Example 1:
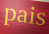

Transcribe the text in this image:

pais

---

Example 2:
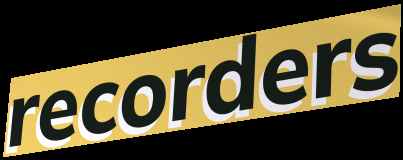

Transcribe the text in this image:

recorders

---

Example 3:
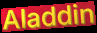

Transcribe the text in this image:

Aladdin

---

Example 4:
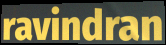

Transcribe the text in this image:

ravindran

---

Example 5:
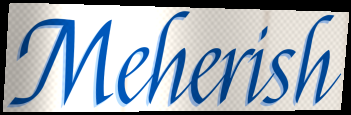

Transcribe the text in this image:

Meherish